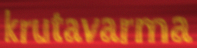
krutavarma